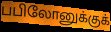
பபிலோனுக்குக்